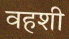
वहशी